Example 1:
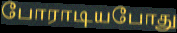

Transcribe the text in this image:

போராடியபோது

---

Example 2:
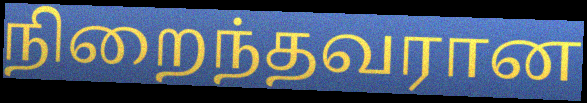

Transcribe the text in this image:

நிறைந்தவரான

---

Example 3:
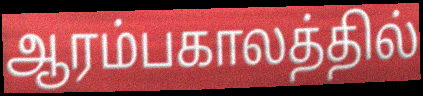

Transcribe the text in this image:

ஆரம்பகாலத்தில்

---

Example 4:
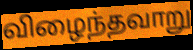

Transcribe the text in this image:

விழைந்தவாறு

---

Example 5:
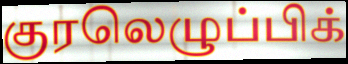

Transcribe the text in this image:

குரலெழுப்பிக்